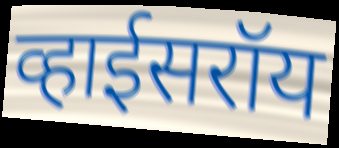
व्हाईसरॉय